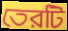
তেরটি